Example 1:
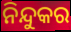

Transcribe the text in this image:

ନିନ୍ଦୁକର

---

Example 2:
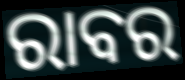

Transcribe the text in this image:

ରାବର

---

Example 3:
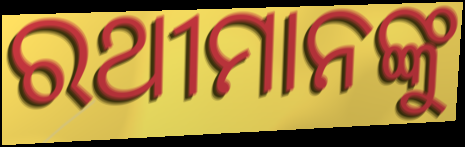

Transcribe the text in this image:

ରଥୀମାନଙ୍କୁ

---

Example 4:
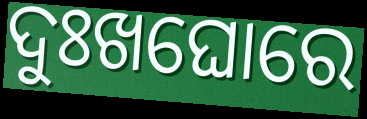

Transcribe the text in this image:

ଦୁଃଖଘୋରେ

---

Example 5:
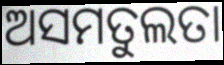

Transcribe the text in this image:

ଅସମତୁଲତା